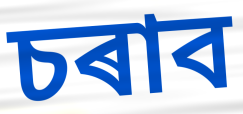
চৰাব